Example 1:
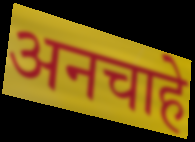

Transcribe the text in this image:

अनचाहे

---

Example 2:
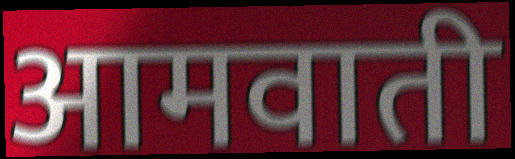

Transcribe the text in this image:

आमवाती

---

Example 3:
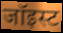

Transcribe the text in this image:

जॉइस्ट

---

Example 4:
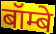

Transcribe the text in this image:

बॉम्‍बे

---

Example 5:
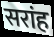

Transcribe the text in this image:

सरांह